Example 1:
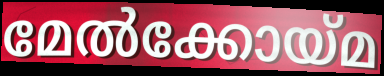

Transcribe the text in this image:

മേൽക്കോയ്മ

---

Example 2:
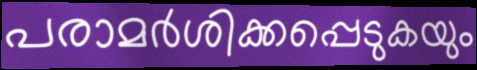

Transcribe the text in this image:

പരാമർശിക്കപ്പെടുകയും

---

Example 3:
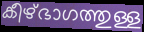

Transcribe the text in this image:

കീഴ്ഭാഗത്തുള്ള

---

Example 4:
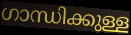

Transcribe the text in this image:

ഗാന്ധിക്കുള്ള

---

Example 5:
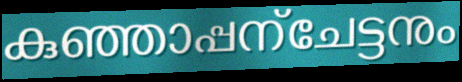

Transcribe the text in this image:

കുഞ്ഞാപ്പന്ചേട്ടനും